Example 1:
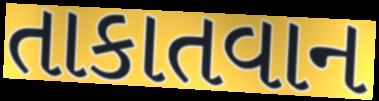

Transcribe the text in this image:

તાકાતવાન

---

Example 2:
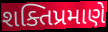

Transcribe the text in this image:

શક્તિપ્રમાણે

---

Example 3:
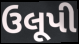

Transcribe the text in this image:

ઉલૂપી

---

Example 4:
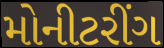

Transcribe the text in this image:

મોનીટરીંગ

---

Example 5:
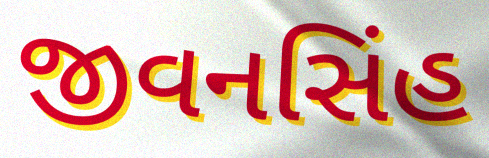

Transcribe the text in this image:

જીવનસિંહ